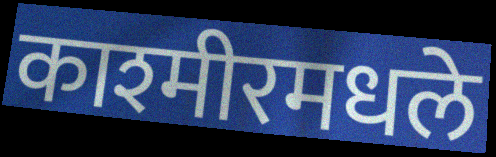
काश्‍मीरमधले